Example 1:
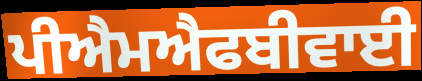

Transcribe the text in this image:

ਪੀਐਮਐਫਬੀਵਾਈ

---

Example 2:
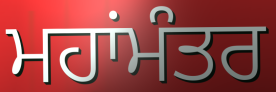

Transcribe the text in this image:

ਮਹਾਂਮੰਤਰ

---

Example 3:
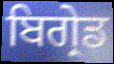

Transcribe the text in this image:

ਬਿਗ੍ਰੇਡ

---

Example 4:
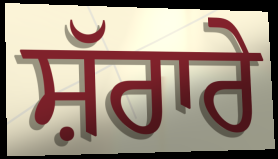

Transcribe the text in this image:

ਸ਼ੱਰਾਰੇ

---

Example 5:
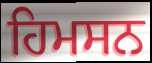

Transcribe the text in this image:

ਹਿਮਸਨ